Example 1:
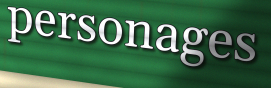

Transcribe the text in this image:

personages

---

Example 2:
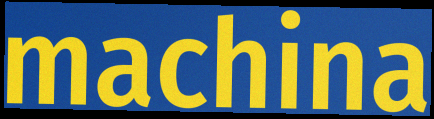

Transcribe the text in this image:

machina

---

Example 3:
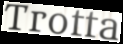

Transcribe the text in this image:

Trotta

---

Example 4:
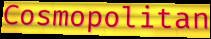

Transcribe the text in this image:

Cosmopolitan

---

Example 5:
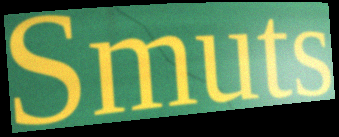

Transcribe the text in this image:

Smuts